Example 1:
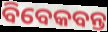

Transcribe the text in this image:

ବିବେକବନ୍ତ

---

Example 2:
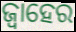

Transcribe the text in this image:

ଜ୍ୱାହେର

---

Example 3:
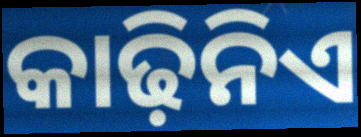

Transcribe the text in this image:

କାଢ଼ିନିଏ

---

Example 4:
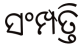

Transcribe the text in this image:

ସଂମ୍ପତ୍ତି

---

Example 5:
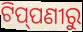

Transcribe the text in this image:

ଟିପ୍‌ପଣୀରୁ